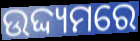
ଉଦ୍ଦ୍ୟମରେ